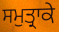
ਸਮੁਤ੍ਰਾਕੇ